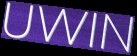
UWIN